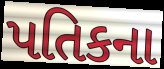
પતિકના